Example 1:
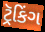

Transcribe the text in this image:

ટ્રૅકિંગ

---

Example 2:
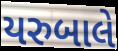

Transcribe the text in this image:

યરુબાલે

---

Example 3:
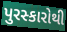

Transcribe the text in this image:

પુરસ્કારોથી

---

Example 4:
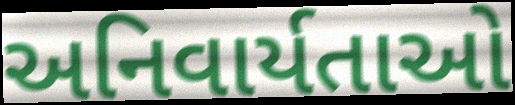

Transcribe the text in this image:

અનિવાર્યતાઓ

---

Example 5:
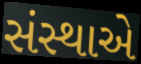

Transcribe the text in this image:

સંસ્થાએ